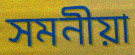
সমনীয়া